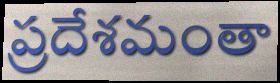
ప్రదేశమంతా